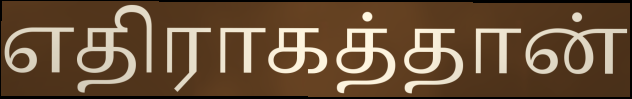
எதிராகத்தான்